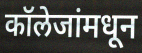
कॉलेजांमधून